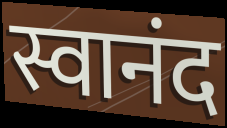
स्वानंद